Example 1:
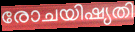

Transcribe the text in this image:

രോചയിഷ്യതി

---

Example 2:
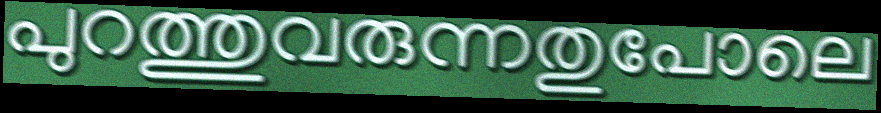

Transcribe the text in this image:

പുറത്തുവരുന്നതുപോലെ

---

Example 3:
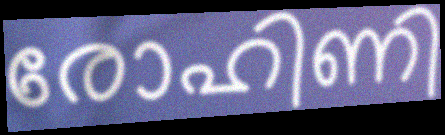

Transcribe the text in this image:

രോഹിണി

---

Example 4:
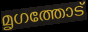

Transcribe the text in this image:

മൃഗത്തോട്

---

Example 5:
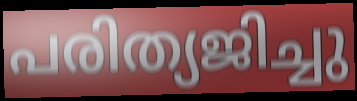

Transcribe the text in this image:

പരിത്യജിച്ചു